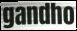
gandho